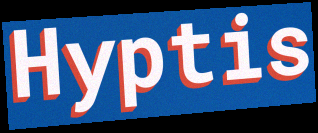
Hyptis